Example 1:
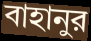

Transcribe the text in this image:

বাহানুর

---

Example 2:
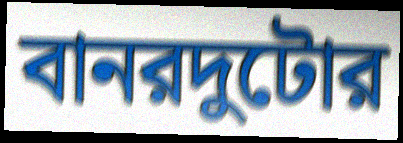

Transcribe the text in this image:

বানরদুটোর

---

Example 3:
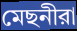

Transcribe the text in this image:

মেছনীরা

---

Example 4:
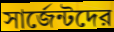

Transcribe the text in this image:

সার্জেন্টদের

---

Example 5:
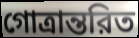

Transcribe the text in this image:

গোত্রান্তরিত